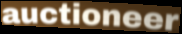
auctioneer